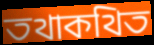
তথাকথিত